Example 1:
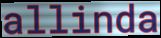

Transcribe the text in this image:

allinda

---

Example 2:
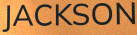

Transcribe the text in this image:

JACKSON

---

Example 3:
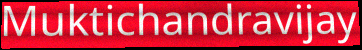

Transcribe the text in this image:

Muktichandravijay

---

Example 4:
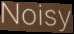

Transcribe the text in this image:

Noisy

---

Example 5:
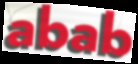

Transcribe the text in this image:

abab